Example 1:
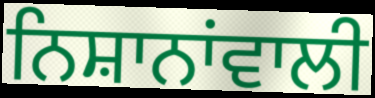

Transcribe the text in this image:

ਨਿਸ਼ਾਨਾਂਵਾਲੀ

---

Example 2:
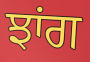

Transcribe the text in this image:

ਝਾਂਗ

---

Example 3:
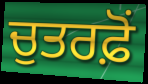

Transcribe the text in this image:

ਚੁਤਰਫ਼ੋਂ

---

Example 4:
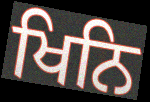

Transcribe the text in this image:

ਖਿਨਿ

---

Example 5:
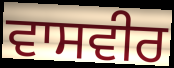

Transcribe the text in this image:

ਵਾਸਵੀਰ